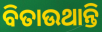
ବିତାଉଥାନ୍ତି